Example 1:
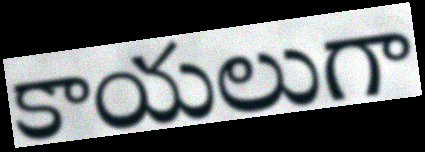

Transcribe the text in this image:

కాయలుగా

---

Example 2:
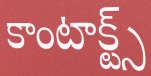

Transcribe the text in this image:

కాంటాక్ట్స్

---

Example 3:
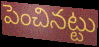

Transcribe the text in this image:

పెంచినట్టు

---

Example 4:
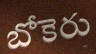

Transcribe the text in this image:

బోకెరు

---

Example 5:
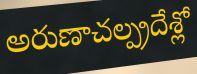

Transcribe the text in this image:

అరుణాచల్ప్రదేశ్లో